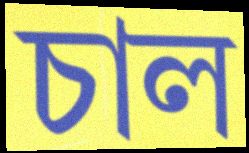
চাল